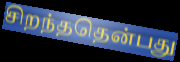
சிறந்ததென்பது